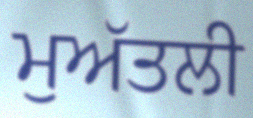
ਮੁਅੱਤਲੀ